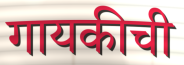
गायकीची